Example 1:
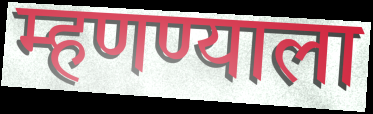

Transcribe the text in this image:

म्हणण्याला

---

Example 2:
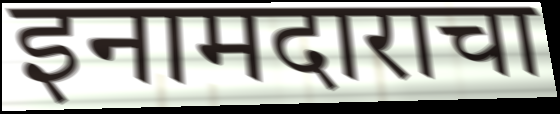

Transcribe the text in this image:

इनामदाराचा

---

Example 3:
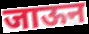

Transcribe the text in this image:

जाऊन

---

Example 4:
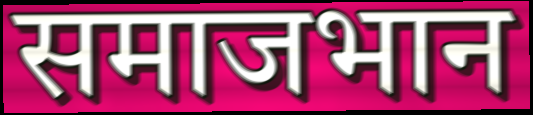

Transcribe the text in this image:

समाजभान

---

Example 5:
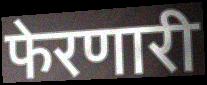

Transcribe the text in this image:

फेरणारी